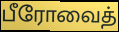
பீரோவைத்